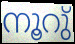
നൂറു്